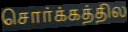
சொர்க்கத்தில